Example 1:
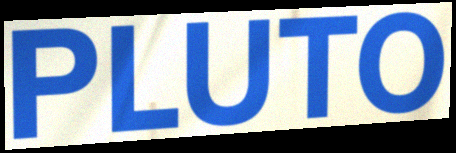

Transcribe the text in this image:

PLUTO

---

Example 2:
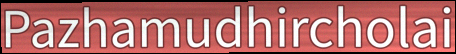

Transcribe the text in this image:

Pazhamudhircholai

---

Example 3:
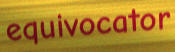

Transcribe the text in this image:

equivocator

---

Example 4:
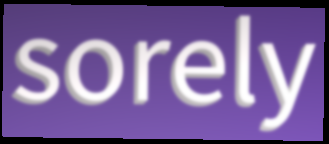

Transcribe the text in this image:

sorely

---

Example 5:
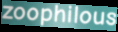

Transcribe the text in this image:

zoophilous